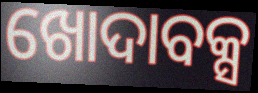
ଖୋଦାବକ୍ସ